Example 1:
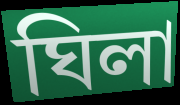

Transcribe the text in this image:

ঘিলা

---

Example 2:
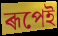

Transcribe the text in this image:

ৰূপেই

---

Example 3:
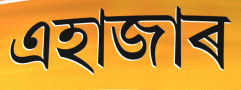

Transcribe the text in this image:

এহাজাৰ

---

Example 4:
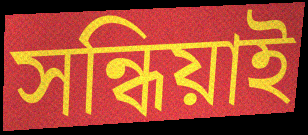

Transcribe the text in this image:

সন্ধিয়াই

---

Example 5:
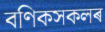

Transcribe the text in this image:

বণিকসকলৰ